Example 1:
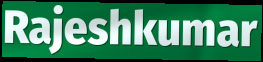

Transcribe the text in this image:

Rajeshkumar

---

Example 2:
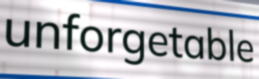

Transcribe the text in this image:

unforgetable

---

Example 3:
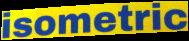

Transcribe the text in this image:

isometric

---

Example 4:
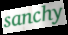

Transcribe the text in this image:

sanchy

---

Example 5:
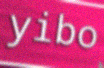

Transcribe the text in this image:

yibo